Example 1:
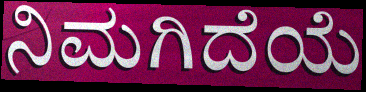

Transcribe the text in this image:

ನಿಮಗಿದೆಯೆ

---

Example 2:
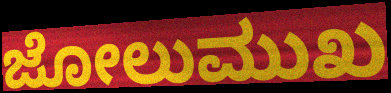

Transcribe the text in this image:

ಜೋಲುಮುಖ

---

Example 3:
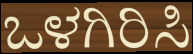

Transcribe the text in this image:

ಒಳಗಿರಿಸಿ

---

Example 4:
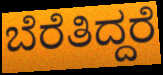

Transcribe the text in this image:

ಬೆರೆತಿದ್ದರೆ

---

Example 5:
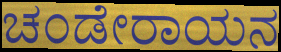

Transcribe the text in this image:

ಚಂಡೇರಾಯನ